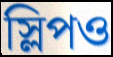
স্লিপও